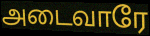
அடைவாரே